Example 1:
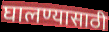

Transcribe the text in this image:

घालण्यासाठी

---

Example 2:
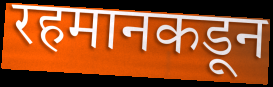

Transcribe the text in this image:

रहमानकडून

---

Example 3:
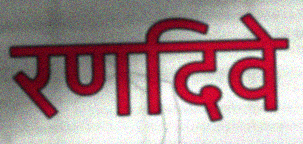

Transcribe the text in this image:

रणदिवे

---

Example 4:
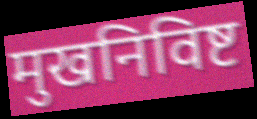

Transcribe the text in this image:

मुखनिविष्ट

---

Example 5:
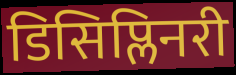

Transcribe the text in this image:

डिसिप्लिनरी